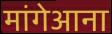
मांगेआना